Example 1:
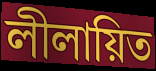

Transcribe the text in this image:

লীলায়িত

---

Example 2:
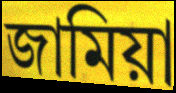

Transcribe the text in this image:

জামিয়া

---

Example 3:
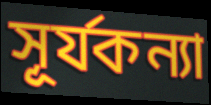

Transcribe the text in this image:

সূর্যকন্যা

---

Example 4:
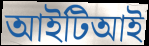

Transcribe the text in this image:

আইটিআই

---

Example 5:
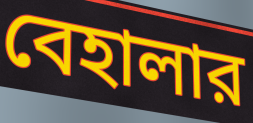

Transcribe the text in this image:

বেহালার